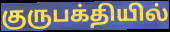
குருபக்தியில்